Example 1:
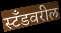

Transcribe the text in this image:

स्टँडवरील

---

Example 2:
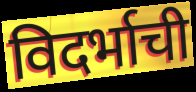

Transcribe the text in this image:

विदर्भाची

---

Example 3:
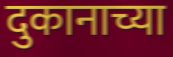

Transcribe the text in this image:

दुकानाच्या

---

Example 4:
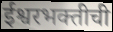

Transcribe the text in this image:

ईश्वरभक्तीची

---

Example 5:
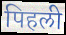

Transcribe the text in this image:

पिहली